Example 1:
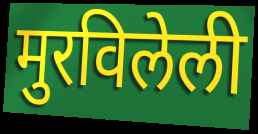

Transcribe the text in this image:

मुरविलेली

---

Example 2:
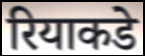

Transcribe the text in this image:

रियाकडे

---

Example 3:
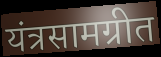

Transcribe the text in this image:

यंत्रसामग्रीत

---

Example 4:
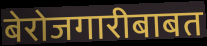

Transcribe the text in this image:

बेरोजगारीबाबत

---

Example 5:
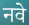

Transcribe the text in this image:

नवे